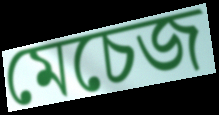
মেচেজ